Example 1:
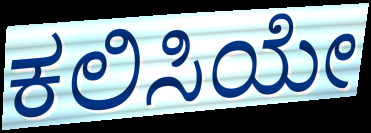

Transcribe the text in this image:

ಕಲಿಸಿಯೇ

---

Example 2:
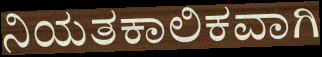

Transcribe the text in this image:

ನಿಯತಕಾಲಿಕವಾಗಿ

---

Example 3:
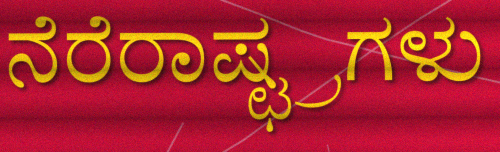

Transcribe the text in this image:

ನೆರೆರಾಷ್ಟ್ರಗಳು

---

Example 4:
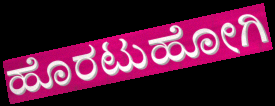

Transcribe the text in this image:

ಹೊರಟುಹೋಗಿ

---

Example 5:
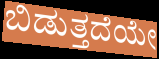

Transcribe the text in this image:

ಬಿಡುತ್ತದೆಯೇ